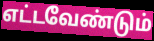
எட்டவேண்டும்